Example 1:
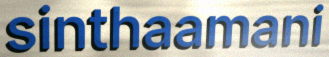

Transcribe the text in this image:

sinthaamani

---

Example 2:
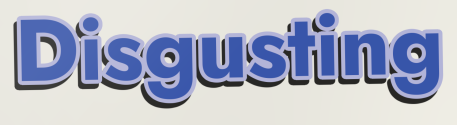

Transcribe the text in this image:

Disgusting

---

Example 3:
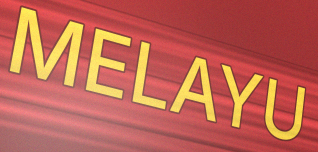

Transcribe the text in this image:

MELAYU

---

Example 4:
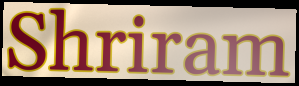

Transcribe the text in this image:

Shriram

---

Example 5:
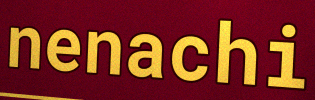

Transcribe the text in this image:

nenachi